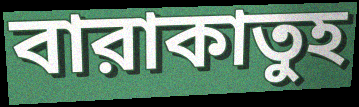
বারাকাতুহ